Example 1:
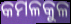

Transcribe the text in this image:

କମଳକୁଳ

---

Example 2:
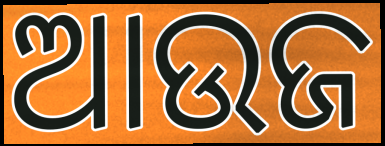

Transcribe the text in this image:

ଆଉଜ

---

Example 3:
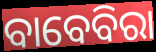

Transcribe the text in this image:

ବାବେବିରା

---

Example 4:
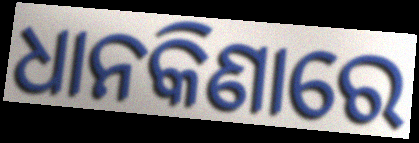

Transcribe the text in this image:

ଧାନକିଣାରେ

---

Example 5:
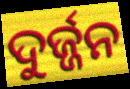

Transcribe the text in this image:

ଦୁର୍ଜ୍ଜନ